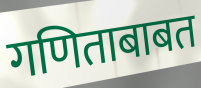
गणिताबाबत